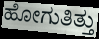
ಹೋಗುತಿತ್ತು